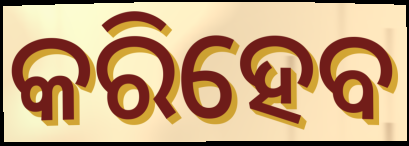
କରିହେବ